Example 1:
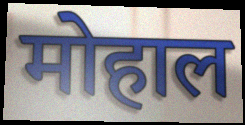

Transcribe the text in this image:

मोहाल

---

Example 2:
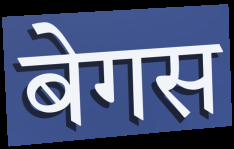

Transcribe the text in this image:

बेगस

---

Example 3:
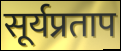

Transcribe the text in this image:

सूर्यप्रताप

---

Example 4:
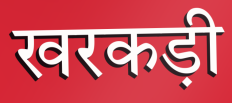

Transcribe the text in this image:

खरकड़ी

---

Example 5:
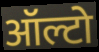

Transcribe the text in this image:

ऑल्टो